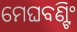
ମେଘବଣ୍ଟିଂ